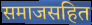
समाजसहित